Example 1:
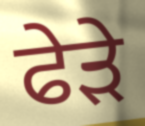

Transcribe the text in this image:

ਫੇੜੇ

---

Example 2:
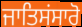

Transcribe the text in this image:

ਜਾਤਿਸਂਸਾਰੋ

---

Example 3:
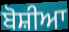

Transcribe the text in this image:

ਬੋਸ਼ੀਆ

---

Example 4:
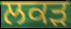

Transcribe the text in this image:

ਲਕੜ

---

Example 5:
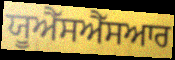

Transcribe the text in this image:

ਯੂਐੱਸਐੱਸਆਰ